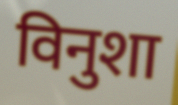
विनुशा